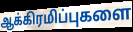
ஆக்கிரமிப்புகளை